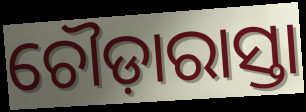
ଚୌଡ଼ାରାସ୍ତା